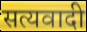
सत्यवादी